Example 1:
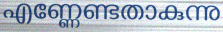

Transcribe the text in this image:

എണ്ണേണ്ടതാകുന്നു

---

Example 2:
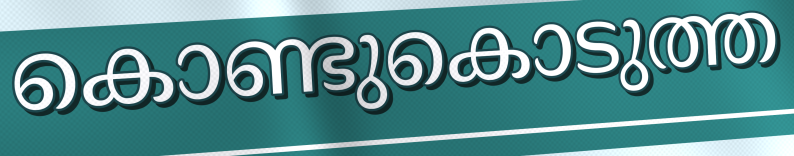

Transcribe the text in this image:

കൊണ്ടുകൊടുത്ത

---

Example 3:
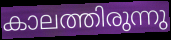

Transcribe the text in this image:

കാലത്തിരുന്നു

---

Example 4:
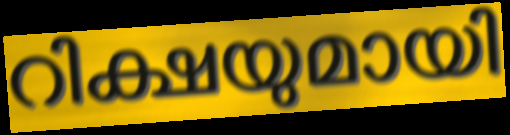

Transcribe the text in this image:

റിക്ഷയുമായി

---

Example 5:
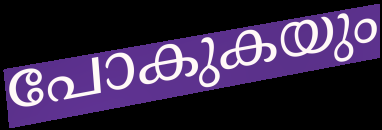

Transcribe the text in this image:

പോകുകയും